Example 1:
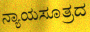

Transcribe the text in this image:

ನ್ಯಾಯಸೂತ್ರದ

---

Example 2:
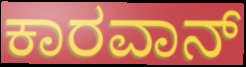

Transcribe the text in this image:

ಕಾರವಾನ್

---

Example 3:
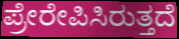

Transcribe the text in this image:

ಪ್ರೇರೇಪಿಸಿರುತ್ತದೆ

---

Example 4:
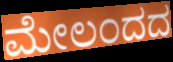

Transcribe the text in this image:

ಮೇಲಂದದ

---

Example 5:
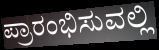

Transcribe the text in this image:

ಪ್ರಾರಂಭಿಸುವಲ್ಲಿ